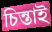
চিন্তাই